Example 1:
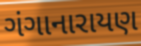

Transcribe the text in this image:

ગંગાનારાયણ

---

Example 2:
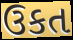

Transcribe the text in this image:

ઉકત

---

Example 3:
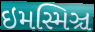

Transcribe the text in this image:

ઇમસ્મિઞ્ચ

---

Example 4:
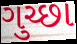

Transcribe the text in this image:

ગુચ્છા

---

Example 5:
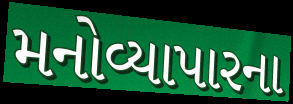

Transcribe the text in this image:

મનોવ્યાપારના